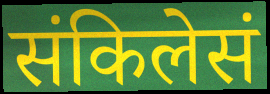
संकिलेसं